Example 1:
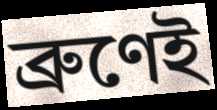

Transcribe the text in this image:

ব্ৰুণেই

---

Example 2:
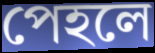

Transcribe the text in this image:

পেহলে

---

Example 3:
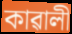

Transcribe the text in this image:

কাৱালী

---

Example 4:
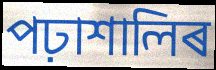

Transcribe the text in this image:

পঢ়াশালিৰ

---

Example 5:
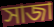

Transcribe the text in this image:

সাজা